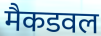
मैकडवल